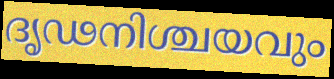
ദൃഢനിശ്ചയവും